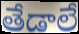
తేడాలే